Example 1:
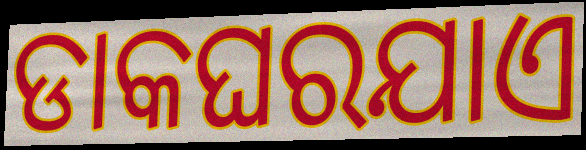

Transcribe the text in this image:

ଡାକଘରଯାଏ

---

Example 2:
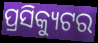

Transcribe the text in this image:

ପ୍ରସିକ୍ୟୁଟର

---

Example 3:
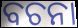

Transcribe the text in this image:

ବଚନା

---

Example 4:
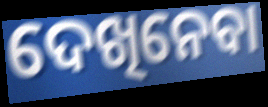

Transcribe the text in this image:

ଦେଖିନେବା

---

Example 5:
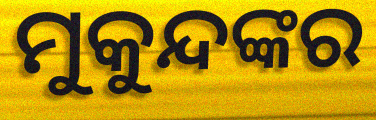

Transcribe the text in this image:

ମୁକୁନ୍ଦଙ୍କର